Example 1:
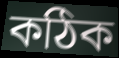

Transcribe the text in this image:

কঠিক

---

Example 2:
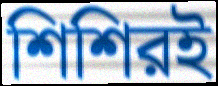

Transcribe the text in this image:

শিশিরই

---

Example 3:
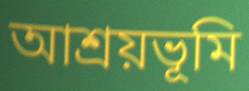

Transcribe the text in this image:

আশ্রয়ভূমি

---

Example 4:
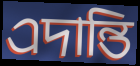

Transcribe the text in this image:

এদান্তি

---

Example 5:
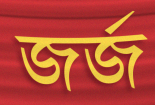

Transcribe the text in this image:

জর্জ